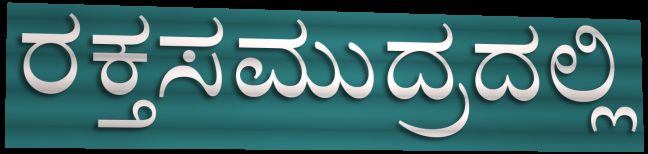
ರಕ್ತಸಮುದ್ರದಲ್ಲಿ